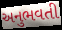
અનુભવતી